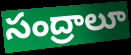
సంద్రాలూ